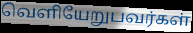
வெளியேறுபவர்கள்